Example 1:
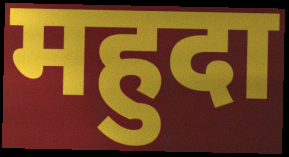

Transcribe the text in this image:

महुदा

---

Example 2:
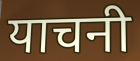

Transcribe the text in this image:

याचनी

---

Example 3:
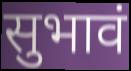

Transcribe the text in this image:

सुभावं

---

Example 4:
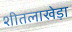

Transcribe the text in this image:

शीतलाखेड़ा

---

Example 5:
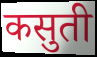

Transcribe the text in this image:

कसुती